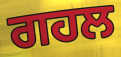
ਗਹਲ